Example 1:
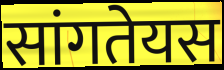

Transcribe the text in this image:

सांगतेयस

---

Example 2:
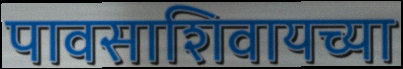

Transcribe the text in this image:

पावसाशिवायच्या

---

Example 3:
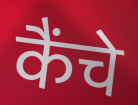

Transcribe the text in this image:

कैंचे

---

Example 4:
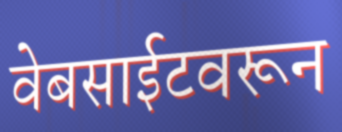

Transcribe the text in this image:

वेबसाईटवरून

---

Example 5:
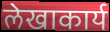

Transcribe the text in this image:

लेखाकार्य